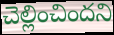
చెల్లించిందని